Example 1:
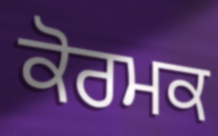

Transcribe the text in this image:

ਕੋਰਮਕ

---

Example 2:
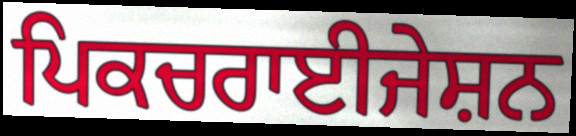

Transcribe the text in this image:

ਪਿਕਚਰਾਈਜੇਸ਼ਨ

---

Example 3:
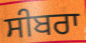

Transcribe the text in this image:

ਸੀਬਰਾ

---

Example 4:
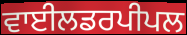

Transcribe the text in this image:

ਵਾਈਲਡਰਪੀਪਲ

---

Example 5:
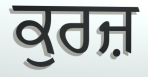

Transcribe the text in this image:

ਕੁਰਜ਼